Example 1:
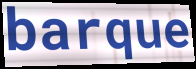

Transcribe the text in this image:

barque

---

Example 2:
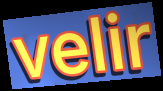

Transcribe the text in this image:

velir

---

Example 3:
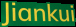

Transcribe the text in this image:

Jiankui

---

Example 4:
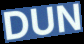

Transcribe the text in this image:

DUN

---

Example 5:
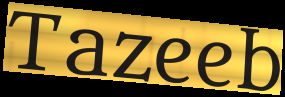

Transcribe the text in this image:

Tazeeb